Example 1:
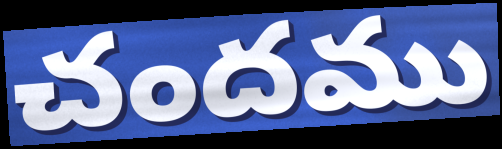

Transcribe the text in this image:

చందము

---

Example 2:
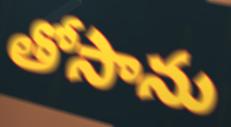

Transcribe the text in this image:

తోసాను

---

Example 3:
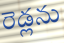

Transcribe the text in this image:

రెడ్లను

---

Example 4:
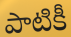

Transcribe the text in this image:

పాటికీ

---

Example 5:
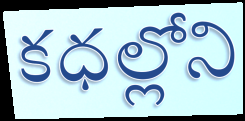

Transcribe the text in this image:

కధల్లోని